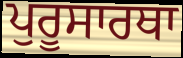
ਪੁਰੂਸਾਰਥਾ